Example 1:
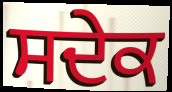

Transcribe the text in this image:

ਸਦੇਕ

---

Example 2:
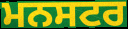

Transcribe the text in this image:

ਮਨਸਟਰ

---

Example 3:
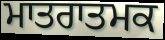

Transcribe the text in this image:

ਮਾਤਰਾਤਮਕ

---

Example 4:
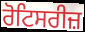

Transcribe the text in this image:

ਰੋਟਿਸਰੀਜ਼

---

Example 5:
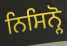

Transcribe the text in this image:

ਨਿਸਿਨ੍ਨੋ